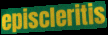
episcleritis